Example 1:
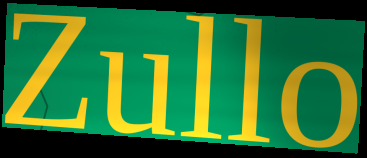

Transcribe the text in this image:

Zullo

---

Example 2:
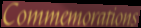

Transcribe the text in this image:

Commemorations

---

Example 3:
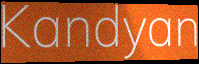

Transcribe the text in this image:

Kandyan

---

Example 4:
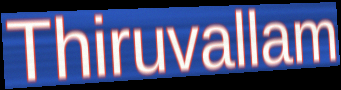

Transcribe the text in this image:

Thiruvallam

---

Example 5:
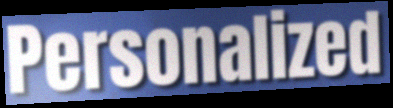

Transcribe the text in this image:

Personalized